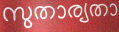
സുതാര്യതാ